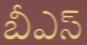
బీఎస్